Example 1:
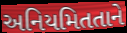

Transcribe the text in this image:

અનિયમિતતાને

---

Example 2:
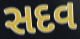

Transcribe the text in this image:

સદવ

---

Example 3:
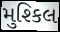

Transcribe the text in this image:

મુશ્કિલ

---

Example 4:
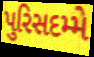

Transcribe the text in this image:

પુરિસદમ્મે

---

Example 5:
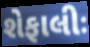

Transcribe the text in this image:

શેફાલીઃ